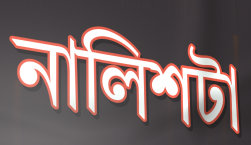
নালিশটা